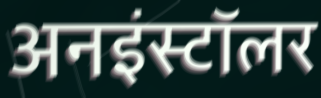
अनइंस्टॉलर